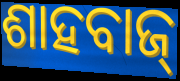
ଶାହବାଜ୍